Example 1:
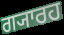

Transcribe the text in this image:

ਗ੍ਯਾਰਹ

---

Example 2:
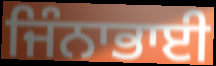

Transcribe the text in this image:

ਜਿੰਨਾਭਾਈ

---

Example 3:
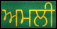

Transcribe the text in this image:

ਅਮਲੀ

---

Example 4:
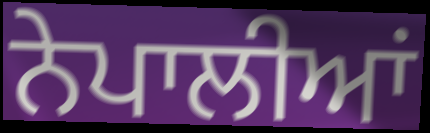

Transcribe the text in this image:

ਨੇਪਾਲੀਆਂ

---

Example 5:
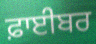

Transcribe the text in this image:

ਫ਼ਾਈਬਰ